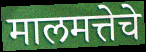
मालमत्तेचे